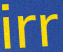
irr